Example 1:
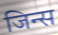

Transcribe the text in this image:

जिन्‍स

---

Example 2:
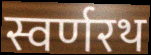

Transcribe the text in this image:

स्वर्णरथ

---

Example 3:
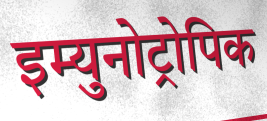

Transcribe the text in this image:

इम्युनोट्रोपिक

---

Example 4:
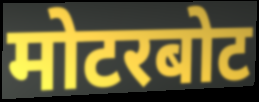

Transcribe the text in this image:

मोटरबोट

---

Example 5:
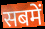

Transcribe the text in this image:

सबमें